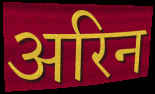
अरिन